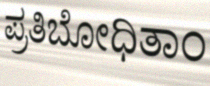
ಪ್ರತಿಬೋಧಿತಾಂ